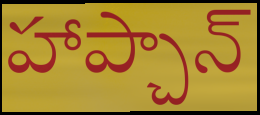
హాప్చాన్